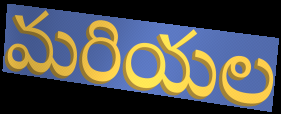
మరియల